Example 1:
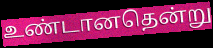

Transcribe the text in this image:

உண்டானதென்று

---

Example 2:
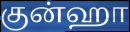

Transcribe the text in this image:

குன்ஹா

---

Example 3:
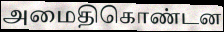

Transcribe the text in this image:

அமைதிகொண்டன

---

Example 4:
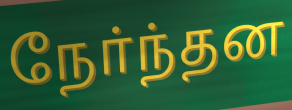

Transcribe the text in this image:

நேர்ந்தன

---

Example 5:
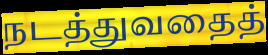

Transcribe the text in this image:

நடத்துவதைத்